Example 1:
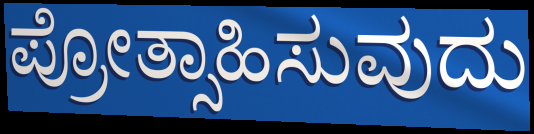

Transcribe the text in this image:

ಪ್ರೋತ್ಸಾಹಿಸುವುದು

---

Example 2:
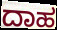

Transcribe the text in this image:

ದಾಹ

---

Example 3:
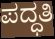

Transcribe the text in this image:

ಪದ್ಧತಿ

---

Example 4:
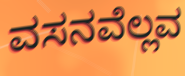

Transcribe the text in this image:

ವಸನವೆಲ್ಲವ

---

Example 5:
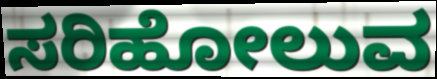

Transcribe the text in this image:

ಸರಿಹೋಲುವ